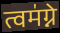
त्वम॑ग्ने